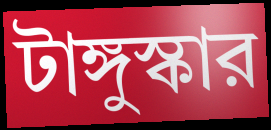
টাঙ্গুস্কার